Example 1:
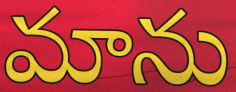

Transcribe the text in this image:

మాను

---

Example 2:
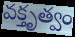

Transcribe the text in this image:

వక్తృత్వం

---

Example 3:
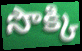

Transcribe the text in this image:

సొక్కి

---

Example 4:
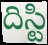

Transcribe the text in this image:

దిస్టి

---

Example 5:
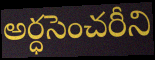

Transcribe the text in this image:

అర్ధసెంచరీని